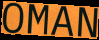
OMAN